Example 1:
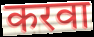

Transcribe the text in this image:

करवा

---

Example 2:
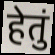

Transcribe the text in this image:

हेतुं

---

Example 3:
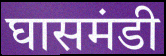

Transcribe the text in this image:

घासमंडी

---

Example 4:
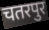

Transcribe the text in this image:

चतरपुर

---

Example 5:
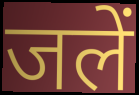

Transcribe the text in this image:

जलें